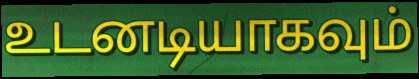
உடனடியாகவும்